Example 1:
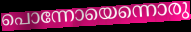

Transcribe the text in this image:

പൊന്നോയെന്നൊരു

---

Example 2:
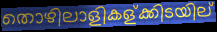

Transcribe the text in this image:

തൊഴിലാളികള്ക്കിടയില്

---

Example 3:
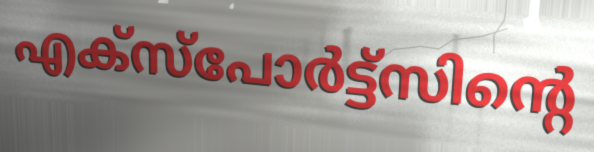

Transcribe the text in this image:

എക്സ്പോർട്ട്സിന്റെ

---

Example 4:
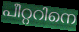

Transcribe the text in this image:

പീറ്ററിനെ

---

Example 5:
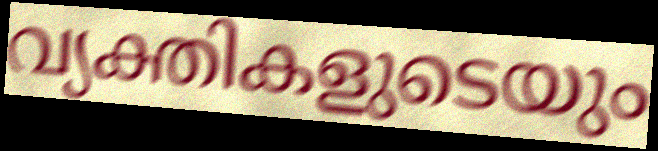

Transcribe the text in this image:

വ്യക്തികളുടെയും